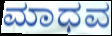
ಮಾಧವ